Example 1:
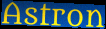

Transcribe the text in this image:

Astron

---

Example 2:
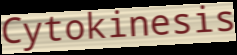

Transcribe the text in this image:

Cytokinesis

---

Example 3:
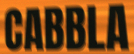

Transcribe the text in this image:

CABBLA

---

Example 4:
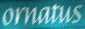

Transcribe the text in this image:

ornatus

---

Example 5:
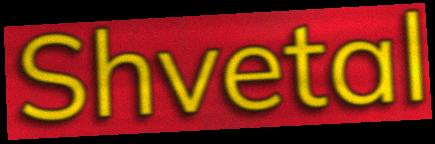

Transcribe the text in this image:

Shvetal